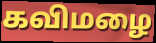
கவிமழை